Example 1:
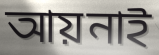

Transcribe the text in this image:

আয়নাই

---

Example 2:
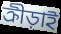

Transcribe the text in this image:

ক্রীড়াই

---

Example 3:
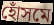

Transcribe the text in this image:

হোঁসমে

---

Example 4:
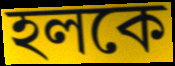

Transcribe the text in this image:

হলকে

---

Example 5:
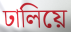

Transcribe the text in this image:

ঢালিয়ে